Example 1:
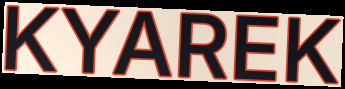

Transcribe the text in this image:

KYAREK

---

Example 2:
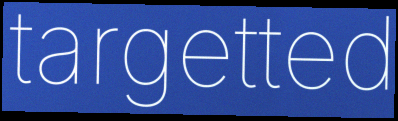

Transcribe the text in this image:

targetted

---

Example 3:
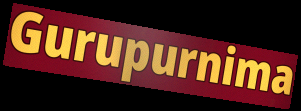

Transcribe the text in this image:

Gurupurnima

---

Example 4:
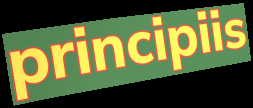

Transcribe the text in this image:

principiis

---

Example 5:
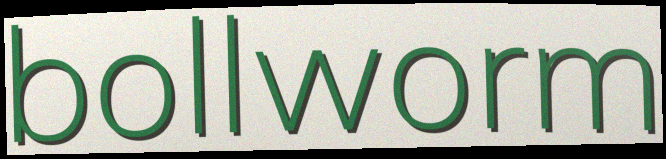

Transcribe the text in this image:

bollworm